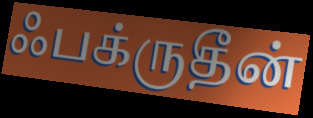
ஃபக்ருதீன்